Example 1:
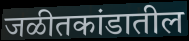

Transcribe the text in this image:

जळीतकांडातील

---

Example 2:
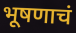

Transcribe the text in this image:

भूषणाचं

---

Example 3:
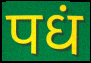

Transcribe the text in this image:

पधं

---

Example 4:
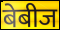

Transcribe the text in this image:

बेबीज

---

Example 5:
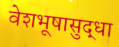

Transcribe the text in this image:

वेशभूषासुद्धा